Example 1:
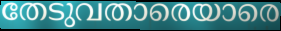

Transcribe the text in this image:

തേടുവതാരെയാരെ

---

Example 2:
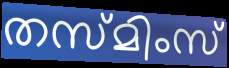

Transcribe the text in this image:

തസ്മിംസ്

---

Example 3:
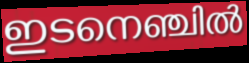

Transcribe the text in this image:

ഇടനെഞ്ചിൽ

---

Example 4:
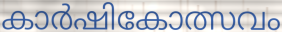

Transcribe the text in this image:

കാർഷികോത്സവം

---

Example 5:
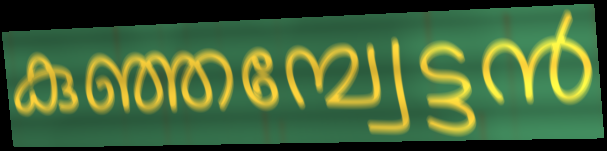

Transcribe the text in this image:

കുഞ്ഞമ്പ്വേട്ടൻ